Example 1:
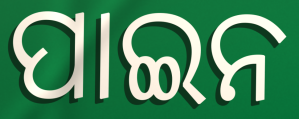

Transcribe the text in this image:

ପାଇନ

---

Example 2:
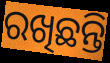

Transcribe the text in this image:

ରଖିଛନ୍ତି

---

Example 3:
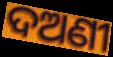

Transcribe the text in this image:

ଦଅଣୀ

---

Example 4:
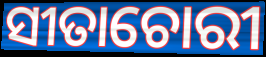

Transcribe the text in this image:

ସୀତାଚୋରୀ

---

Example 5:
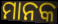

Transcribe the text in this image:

ମାନକ